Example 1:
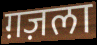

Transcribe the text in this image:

ग़ज़ला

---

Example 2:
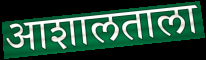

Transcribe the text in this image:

आशालताला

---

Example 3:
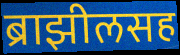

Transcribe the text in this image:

ब्राझीलसह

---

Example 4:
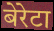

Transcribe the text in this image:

बेरेटा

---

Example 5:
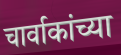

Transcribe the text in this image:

चार्वाकांच्या